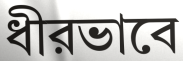
ধীরভাবে